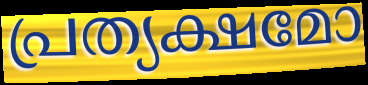
പ്രത്യക്ഷമോ